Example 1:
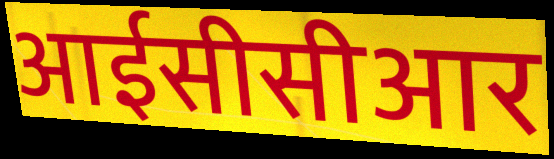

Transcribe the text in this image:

आईसीसीआर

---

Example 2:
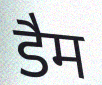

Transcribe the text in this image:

डैम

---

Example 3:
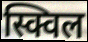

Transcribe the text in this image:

स्क्विल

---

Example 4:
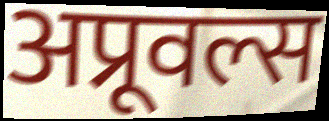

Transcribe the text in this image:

अप्रूवल्स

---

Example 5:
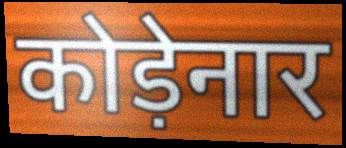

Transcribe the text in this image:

कोड़ेनार